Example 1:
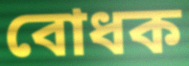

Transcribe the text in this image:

বোধক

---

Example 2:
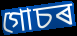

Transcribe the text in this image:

গোচৰ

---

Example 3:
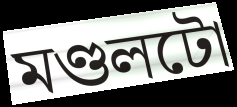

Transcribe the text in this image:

মণ্ডলটো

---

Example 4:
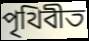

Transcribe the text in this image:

পৃথিবীত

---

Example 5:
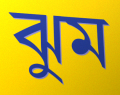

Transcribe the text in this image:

ঝুম